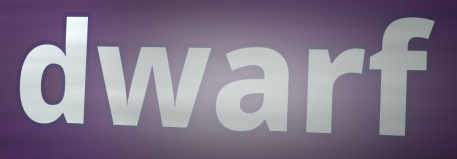
dwarf